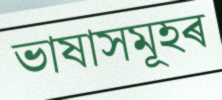
ভাষাসমূহৰ